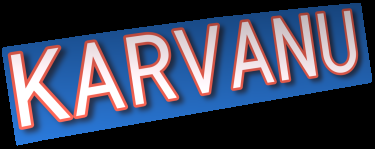
KARVANU